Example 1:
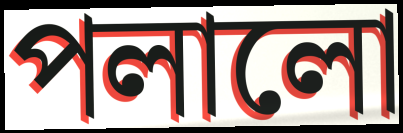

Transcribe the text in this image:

পলালো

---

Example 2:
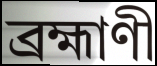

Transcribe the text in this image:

ব্রহ্মাণী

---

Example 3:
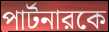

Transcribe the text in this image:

পার্টনারকে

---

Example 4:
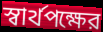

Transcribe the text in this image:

স্বার্থপক্ষের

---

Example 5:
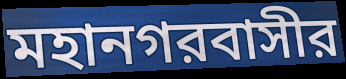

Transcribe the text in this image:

মহানগরবাসীর